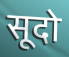
सूदो